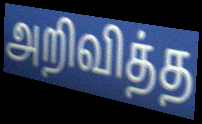
அறிவித்த